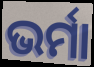
ଭର୍ମା